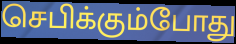
செபிக்கும்போது